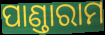
ପାଣ୍ଡାରାମ